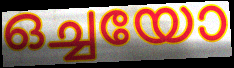
ഒച്ചയോ